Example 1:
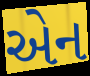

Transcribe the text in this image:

એન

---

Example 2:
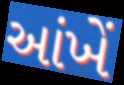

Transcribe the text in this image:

આંખેં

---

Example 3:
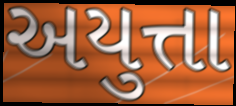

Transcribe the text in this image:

અયુત્તા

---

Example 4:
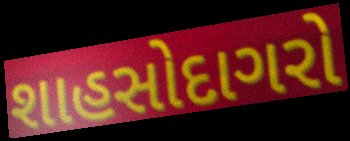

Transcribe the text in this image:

શાહસોદાગરો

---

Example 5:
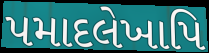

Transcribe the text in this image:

પમાદલેખાપિ